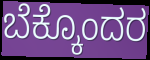
ಬೆಕ್ಕೊಂದರ